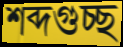
শব্দগুচ্ছ